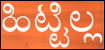
ಹಿಟ್ಟಿಲ್ಲ